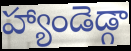
హ్యాండెడ్గా